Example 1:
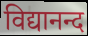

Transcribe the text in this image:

विद्यानन्द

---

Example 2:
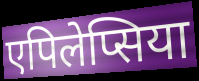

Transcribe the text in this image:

एपिलेप्सिया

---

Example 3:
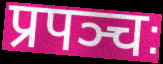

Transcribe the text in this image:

प्रपञ्चः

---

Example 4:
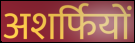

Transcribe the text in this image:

अशर्फियों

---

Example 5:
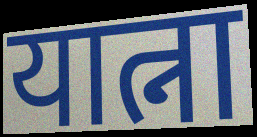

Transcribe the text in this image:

यात्ना